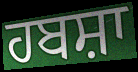
ਹਬਸ਼ਾ